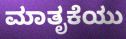
ಮಾತೃಕೆಯು